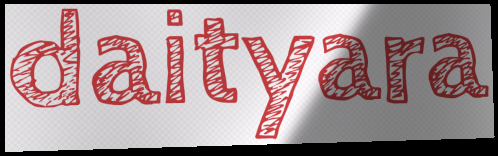
daityara